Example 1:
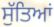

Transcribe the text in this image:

ਸੁੱਤਿਆਂ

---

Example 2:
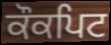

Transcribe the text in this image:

ਕੌਕਪਿਟ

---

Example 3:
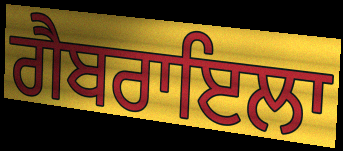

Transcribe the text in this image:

ਗੈਬਰਾਇਲਾ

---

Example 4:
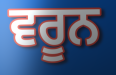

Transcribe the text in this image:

ਵਰੂਨ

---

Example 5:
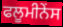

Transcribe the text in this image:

ਫਲੂਮੀਨੇਂਸ